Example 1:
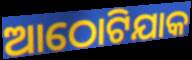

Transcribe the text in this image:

ଆଠୋଟିଯାକ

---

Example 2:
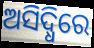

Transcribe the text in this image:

ଅସିଦ୍ଧିରେ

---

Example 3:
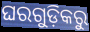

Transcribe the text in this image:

ଘରଗୁଡ଼ିକରୁ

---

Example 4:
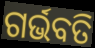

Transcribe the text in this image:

ଗର୍ଭବତି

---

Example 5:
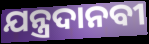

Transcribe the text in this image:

ଯନ୍ତ୍ରଦାନବୀ